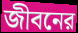
জীবনের